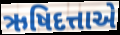
ઋષિદત્તાએ